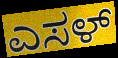
ಎಸಳ್